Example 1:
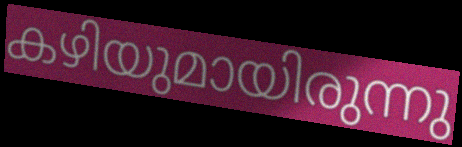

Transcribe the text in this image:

കഴിയുമായിരുന്നു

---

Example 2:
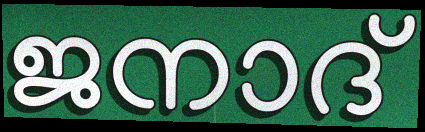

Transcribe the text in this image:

ജനാദ്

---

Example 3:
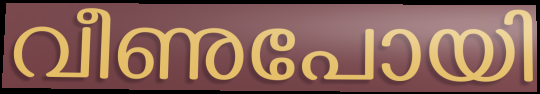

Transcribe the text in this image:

വീണുപോയി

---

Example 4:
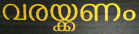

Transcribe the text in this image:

വരയ്ക്കണം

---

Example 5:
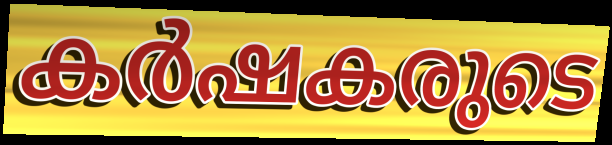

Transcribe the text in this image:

കർഷകരുടെ